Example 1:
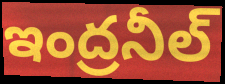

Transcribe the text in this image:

ఇంద్రనీల్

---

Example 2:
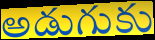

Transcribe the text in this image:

అడుగుకు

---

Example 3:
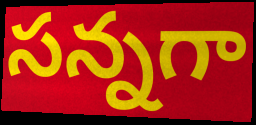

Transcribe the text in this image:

సన్నగా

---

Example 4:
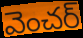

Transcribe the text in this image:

వెంచర్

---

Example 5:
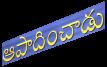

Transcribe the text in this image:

ఆపాదించాడు